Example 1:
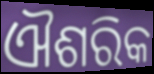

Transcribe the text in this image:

ଐଶରିକ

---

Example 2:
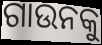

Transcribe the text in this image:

ଗାଉନକୁ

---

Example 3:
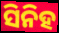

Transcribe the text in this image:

ସିନିହ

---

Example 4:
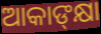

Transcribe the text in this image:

ଆକାଙ୍‍କ୍ଷା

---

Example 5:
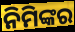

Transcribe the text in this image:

ନିମିଙ୍କର